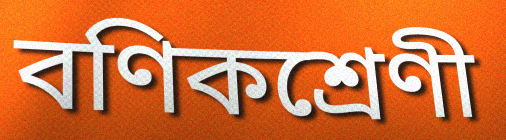
বণিকশ্রেণী